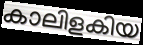
കാലിളകിയ